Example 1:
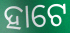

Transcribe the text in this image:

ହାଟେ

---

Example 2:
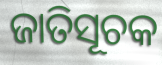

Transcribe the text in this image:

ଜାତିସୂଚକ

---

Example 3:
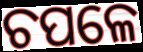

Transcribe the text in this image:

ଚପଳେ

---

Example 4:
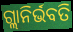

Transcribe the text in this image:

ଗ୍ଲାନିର୍ଭବତି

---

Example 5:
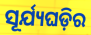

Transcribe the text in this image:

ସୂର୍ଯ୍ୟଘଡ଼ିର